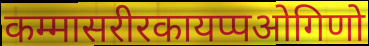
कम्मासरीरकायप्पओगिणो